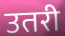
उतरी